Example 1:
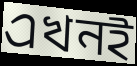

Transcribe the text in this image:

এখনই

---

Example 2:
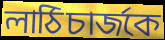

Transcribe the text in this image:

লাঠিচার্জকে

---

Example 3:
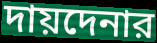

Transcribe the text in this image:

দায়দেনার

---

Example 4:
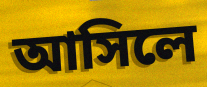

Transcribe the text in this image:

আসিলে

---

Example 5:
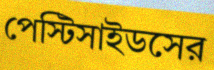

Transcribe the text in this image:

পেস্টিসাইডসের